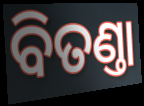
ବିତଣ୍ତା